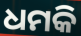
ଧମକି